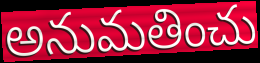
అనుమతించు